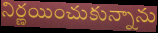
నిర్ణయించుకున్నాను